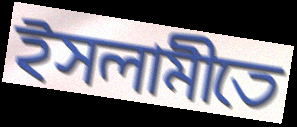
ইসলামীতে